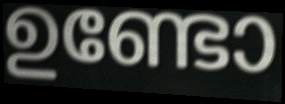
ഉണ്ടോ